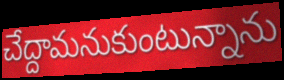
చేద్దామనుకుంటున్నాను